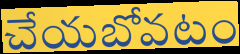
చేయబోవటం